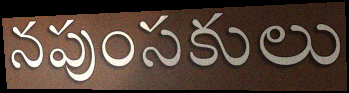
నపుంసకులు